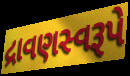
દ્રાવણસ્વરૂપે